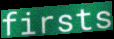
firsts